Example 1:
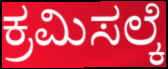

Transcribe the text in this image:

ಕ್ರಮಿಸಲ್ಕೆ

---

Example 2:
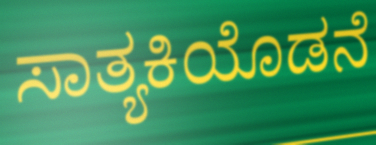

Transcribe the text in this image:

ಸಾತ್ಯಕಿಯೊಡನೆ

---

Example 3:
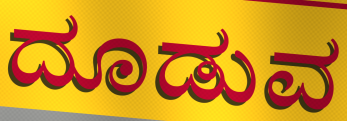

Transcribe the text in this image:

ದೂಡುವ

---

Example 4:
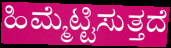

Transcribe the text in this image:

ಹಿಮ್ಮೆಟ್ಟಿಸುತ್ತದೆ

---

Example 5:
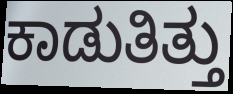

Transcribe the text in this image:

ಕಾಡುತಿತ್ತು